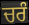
ਚਰੰ